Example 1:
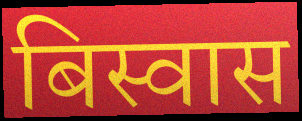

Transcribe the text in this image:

बिस्वास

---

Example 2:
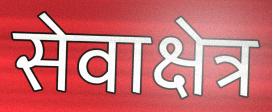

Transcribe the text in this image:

सेवाक्षेत्र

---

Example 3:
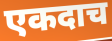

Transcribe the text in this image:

एकदाच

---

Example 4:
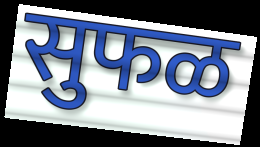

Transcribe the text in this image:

सुफळ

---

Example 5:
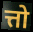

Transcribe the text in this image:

त्तो